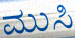
ಮುಸಿ